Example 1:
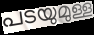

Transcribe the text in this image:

പടയുമുള്ള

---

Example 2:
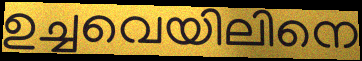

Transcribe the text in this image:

ഉച്ചവെയിലിനെ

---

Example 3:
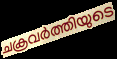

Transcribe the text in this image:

ചക്രവർത്തിയുടെ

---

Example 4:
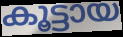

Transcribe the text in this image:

കൂട്ടായ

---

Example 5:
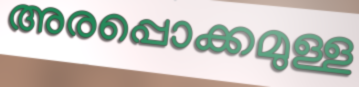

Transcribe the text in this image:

അരപ്പൊക്കമുള്ള